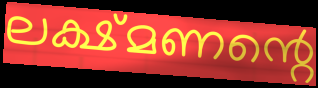
ലക്ഷ്മണന്റെ